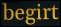
begirt